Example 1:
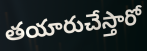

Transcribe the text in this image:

తయారుచేస్తారో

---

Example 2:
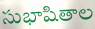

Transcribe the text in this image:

సుభాషితాల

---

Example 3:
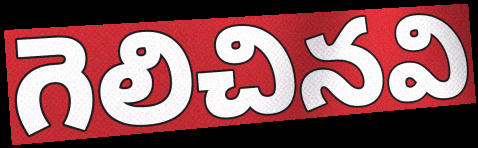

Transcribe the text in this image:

గెలిచినవి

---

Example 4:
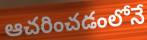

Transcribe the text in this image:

ఆచరించడంలోనే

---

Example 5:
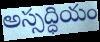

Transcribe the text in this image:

అస్సద్ధియం